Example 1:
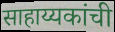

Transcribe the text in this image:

साहाय्यकांची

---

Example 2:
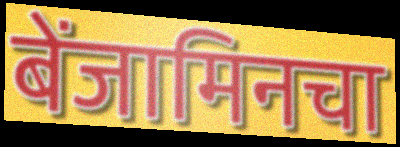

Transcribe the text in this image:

बेंजामिनचा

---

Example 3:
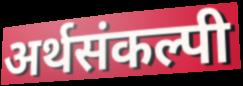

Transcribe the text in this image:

अर्थसंकल्पी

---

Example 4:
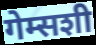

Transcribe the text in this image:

गेम्सशी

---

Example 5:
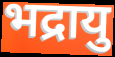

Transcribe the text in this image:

भद्रायु